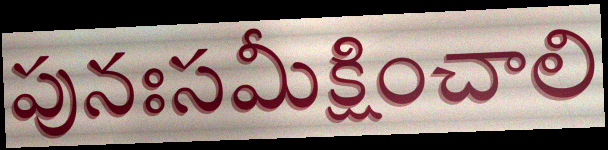
పునఃసమీక్షించాలి